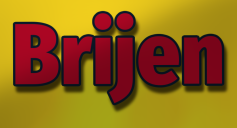
Brijen